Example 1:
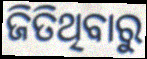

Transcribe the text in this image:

ଜିତିଥିବାରୁ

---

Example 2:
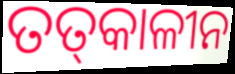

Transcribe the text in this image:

ତତ୍‌କାଳୀନ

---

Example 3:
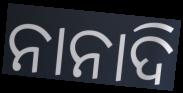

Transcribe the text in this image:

ନାନାଦି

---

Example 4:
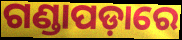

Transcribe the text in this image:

ଗଣ୍ଡାପଡ଼ାରେ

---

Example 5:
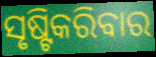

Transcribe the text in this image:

ସୃଷ୍ଟିକରିବାର